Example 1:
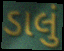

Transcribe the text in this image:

ડાલું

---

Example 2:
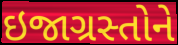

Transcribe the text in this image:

ઇજાગ્રસ્તોને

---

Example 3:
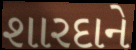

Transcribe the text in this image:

શારદાને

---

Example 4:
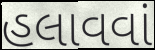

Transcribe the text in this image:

હલાવવાં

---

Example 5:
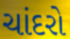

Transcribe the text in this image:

ચાંદરો